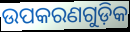
ଉପକରଣଗୁଡ଼ିକ